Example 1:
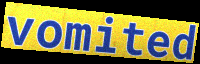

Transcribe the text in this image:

vomited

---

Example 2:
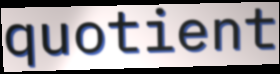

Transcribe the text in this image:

quotient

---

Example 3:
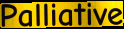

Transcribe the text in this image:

Palliative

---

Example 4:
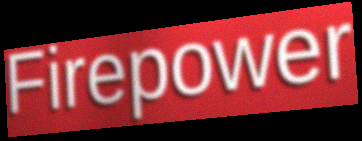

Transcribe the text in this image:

Firepower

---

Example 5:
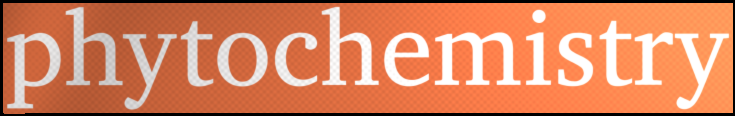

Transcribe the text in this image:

phytochemistry